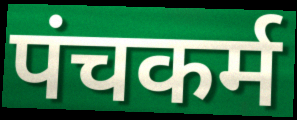
पंचकर्म